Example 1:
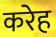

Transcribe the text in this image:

करेह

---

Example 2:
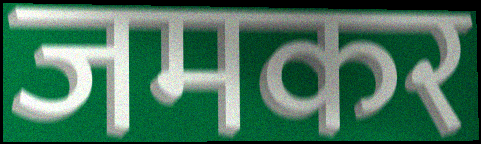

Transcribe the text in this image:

जमकर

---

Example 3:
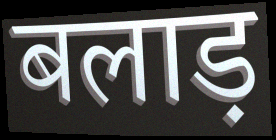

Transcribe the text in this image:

बलाड़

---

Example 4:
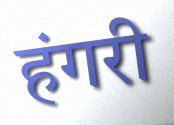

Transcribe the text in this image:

हंगरी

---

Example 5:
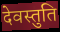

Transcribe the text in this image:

देवस्तुति